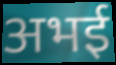
अभई